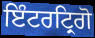
ਇੰਟਰਟ੍ਰਿਗੋ